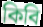
কিবি